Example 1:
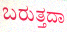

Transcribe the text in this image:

ಬರುತ್ತದಾ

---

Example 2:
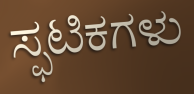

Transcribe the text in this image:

ಸ್ಫಟಿಕಗಳು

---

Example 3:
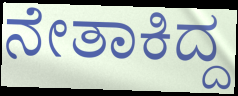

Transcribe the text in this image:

ನೇತಾಕಿದ್ದ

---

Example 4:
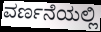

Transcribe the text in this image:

ವರ್ಣನೆಯಲ್ಲಿ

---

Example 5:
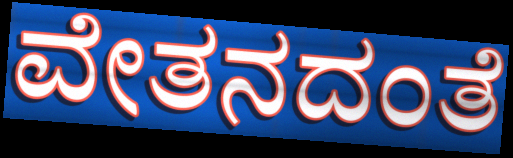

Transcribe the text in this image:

ವೇತನದಂತೆ